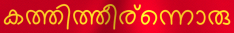
കത്തിത്തീര്ന്നൊരു